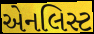
એનલિસ્ટ